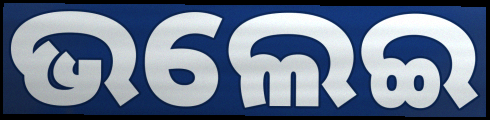
ଭଲେଇ